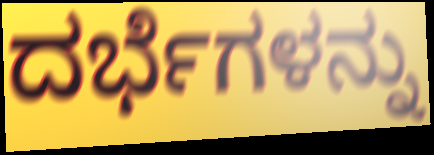
ದರ್ಭೆಗಳನ್ನು